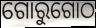
ଗୋରୁଗୋଠ